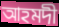
আহমদী